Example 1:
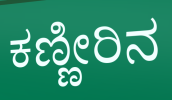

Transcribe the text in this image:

ಕಣ್ಣೀರಿನ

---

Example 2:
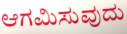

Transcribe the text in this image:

ಆಗಮಿಸುವುದು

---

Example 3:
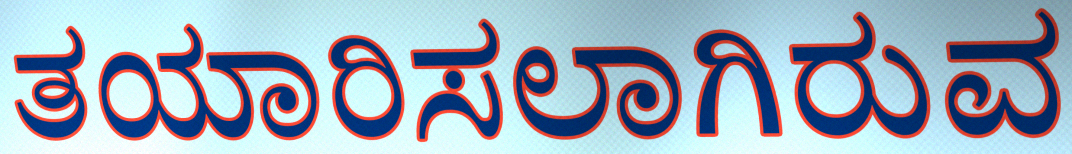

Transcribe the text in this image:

ತಯಾರಿಸಲಾಗಿರುವ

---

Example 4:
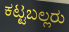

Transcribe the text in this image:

ಕಟ್ಟಬಲ್ಲರು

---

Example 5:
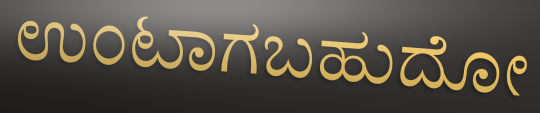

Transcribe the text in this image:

ಉಂಟಾಗಬಹುದೋ